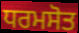
ਧਰਮਸੋਤ